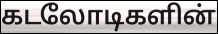
கடலோடிகளின்